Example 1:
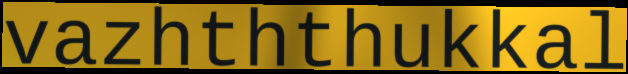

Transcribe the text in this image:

vazhththukkal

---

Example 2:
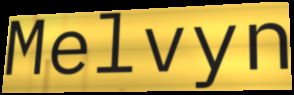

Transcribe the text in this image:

Melvyn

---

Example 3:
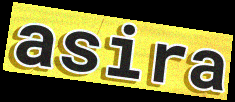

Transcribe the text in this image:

asira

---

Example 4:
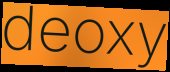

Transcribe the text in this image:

deoxy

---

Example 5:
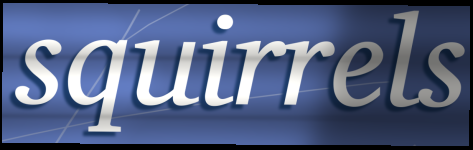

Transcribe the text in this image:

squirrels